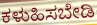
ಕಳುಹಿಸಬೇಡಿ